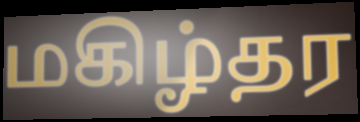
மகிழ்தர